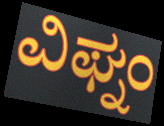
ವಿಘ್ನಂ